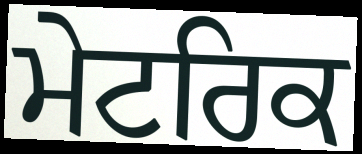
ਮੇਟਰਿਕ